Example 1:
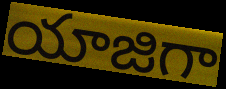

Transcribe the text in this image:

యాజిగా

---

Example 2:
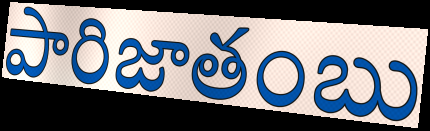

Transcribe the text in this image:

పారిజాతంబు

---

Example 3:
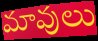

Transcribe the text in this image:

మావులు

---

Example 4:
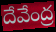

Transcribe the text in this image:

దేవేంద్ర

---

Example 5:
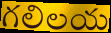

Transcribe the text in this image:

గలిలయ